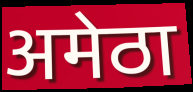
अमेठा